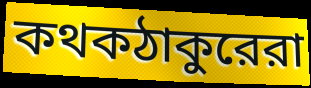
কথকঠাকুরেরা